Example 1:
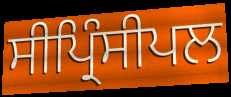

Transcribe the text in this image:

ਸੀਪ੍ਰਿੰਸੀਪਲ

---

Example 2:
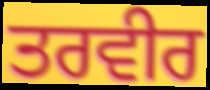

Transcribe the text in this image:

ਤਰਵੀਰ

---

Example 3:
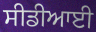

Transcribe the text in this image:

ਸੀਡੀਆਈ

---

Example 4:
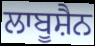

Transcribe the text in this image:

ਲਾਬੂਸ਼ੈਨ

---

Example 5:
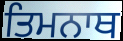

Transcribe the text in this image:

ਤਿਮਨਾਥ